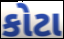
કોટા